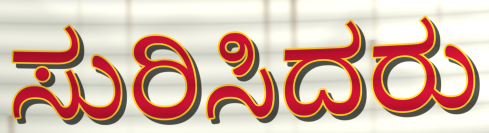
ಸುರಿಸಿದರು